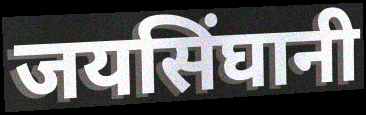
जयसिंघानी